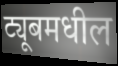
ट्यूबमधील